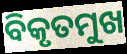
ବିକୃତମୁଖ